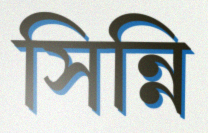
সিন্নি